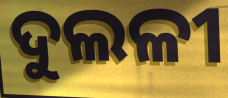
ଦୁଲଳୀ